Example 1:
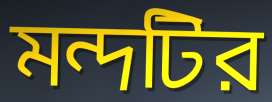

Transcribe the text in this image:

মন্দটির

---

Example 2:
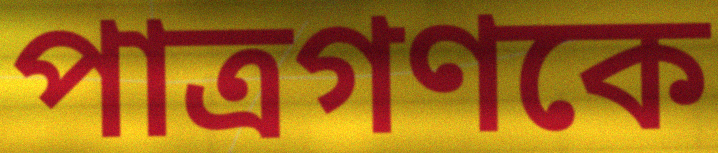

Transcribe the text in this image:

পাত্রগণকে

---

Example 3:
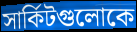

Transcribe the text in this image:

সার্কিটগুলোকে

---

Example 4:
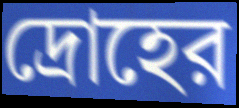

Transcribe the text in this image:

দ্রোহের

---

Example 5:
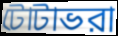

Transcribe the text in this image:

টোটাভরা